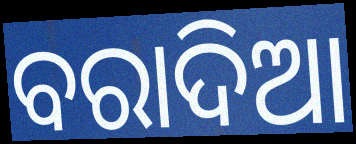
ବରାଦିଆ